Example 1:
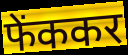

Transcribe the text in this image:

फेंककर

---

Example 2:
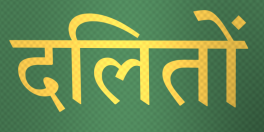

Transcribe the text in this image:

दलितों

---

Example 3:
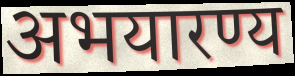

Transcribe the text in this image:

अभयारण्य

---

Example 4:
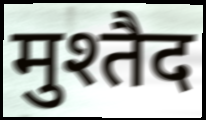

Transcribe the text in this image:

मुश्तैद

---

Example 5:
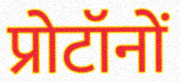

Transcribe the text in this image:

प्रोटॉनों